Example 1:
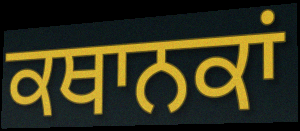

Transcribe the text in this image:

ਕਥਾਨਕਾਂ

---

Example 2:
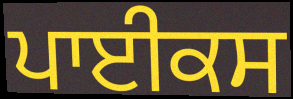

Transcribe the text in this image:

ਪਾਈਕਸ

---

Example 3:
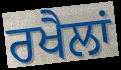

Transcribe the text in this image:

ਰਖੈਲਾਂ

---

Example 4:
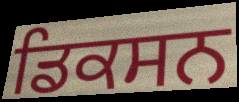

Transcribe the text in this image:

ਡਿਕਸਨ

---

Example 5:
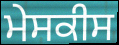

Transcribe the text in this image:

ਮੇਸਕੀਸ